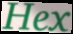
Hex